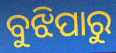
ବୁଝିପାରୁ